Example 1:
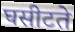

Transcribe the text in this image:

घसीटते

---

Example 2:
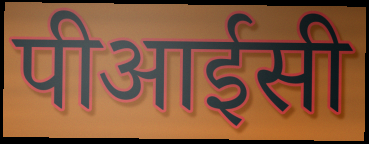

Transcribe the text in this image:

पीआईसी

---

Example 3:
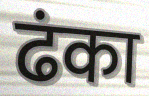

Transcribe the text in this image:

ढंका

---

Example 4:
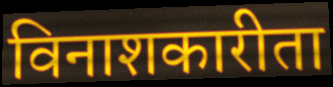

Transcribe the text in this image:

विनाशकारीता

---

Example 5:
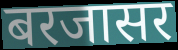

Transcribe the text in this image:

बरजासर